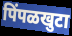
पिंपळखुटा